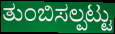
ತುಂಬಿಸಲ್ಪಟ್ಟು